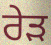
ਰੇੜ